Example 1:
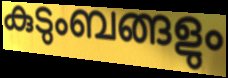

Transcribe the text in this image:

കുടുംബങ്ങളും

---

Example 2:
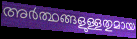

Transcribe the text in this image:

അർത്ഥങ്ങളുള്ളതുമായ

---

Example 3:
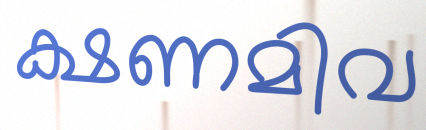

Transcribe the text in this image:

ക്ഷണമിവ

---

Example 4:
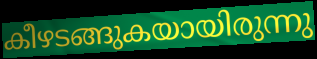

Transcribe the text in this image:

കീഴടങ്ങുകയായിരുന്നു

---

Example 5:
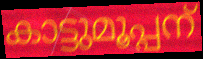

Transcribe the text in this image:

കാട്ടുമൂപ്പന്